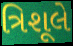
ત્રિશૂલે